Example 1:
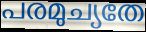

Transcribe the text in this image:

പരമുച്യതേ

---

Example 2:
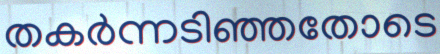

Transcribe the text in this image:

തകർന്നടിഞ്ഞതോടെ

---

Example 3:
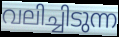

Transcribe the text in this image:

വലിച്ചിടുന്ന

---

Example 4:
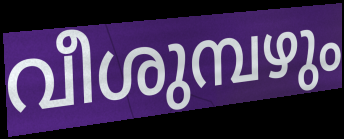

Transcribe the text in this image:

വീശുമ്പഴും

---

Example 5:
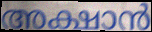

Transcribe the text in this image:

അക്ഷാൻ